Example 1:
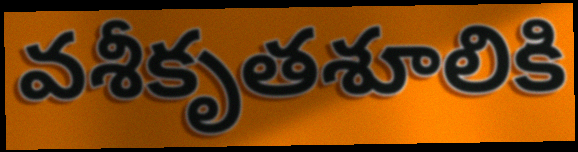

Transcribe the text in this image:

వశీకృతశూలికి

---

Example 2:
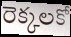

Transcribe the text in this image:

రెక్కలకో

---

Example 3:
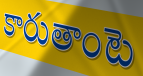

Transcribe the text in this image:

కారుతాంటె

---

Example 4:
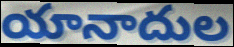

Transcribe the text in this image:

యానాదుల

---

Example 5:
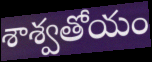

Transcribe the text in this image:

శాశ్వతోయం